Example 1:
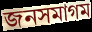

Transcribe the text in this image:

জনসমাগম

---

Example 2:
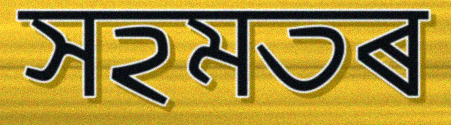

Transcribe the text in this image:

সহমতৰ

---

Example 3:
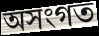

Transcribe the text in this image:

অসংগত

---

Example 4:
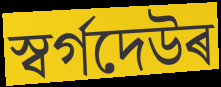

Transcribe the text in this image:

স্বৰ্গদেউৰ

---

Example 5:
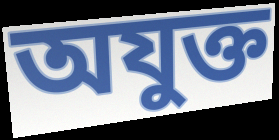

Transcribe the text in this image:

অযুক্ত